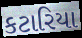
કટારિયા